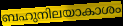
ബഹുനിലയാകാശം